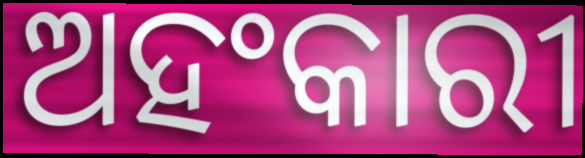
ଅହଂକାରୀ